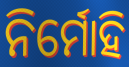
ନିର୍ମୋହି